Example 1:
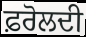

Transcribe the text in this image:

ਫ਼ਰੋਲਦੀ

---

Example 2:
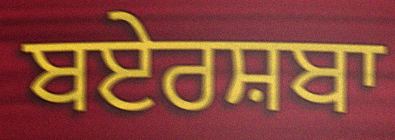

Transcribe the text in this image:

ਬਏਰਸ਼ਬਾ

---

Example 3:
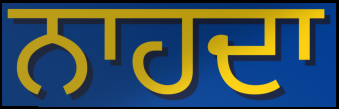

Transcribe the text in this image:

ਨਾਹਦਾ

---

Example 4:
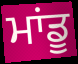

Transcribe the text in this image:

ਮਾਂਡੂ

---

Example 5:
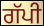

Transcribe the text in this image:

ਗੱਪੀ